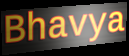
Bhavya